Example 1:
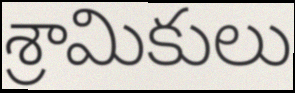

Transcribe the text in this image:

శ్రామికులు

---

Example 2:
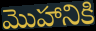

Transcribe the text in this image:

మొహానికి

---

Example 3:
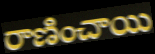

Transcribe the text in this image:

రాణించాయి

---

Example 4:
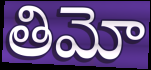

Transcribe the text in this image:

తిమో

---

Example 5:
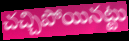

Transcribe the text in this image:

చచ్చిపోయినట్టు